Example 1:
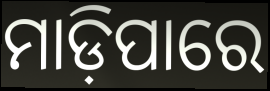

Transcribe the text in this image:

ମାଡ଼ିପାରେ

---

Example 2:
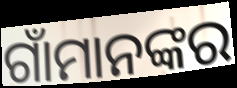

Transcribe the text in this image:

ଗାଁମାନଙ୍କର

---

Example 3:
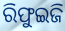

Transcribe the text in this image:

ରିଫୁଇଜି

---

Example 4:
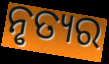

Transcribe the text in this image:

ନୃତ୍ୟର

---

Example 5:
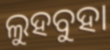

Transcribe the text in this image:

ଲୁହବୁହା